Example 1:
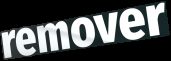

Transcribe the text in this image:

remover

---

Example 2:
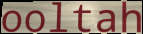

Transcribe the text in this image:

ooltah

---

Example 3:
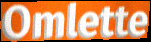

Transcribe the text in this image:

Omlette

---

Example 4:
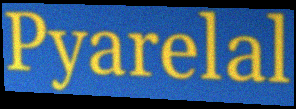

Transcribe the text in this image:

Pyarelal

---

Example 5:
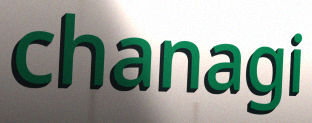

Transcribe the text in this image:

chanagi